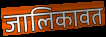
जालिकावत